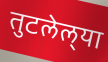
तुटलेल्या